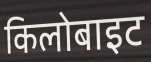
किलोबाइट